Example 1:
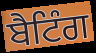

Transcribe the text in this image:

ਬੈਟਿੰਗ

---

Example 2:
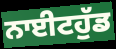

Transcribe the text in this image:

ਨਾਈਟਹੁੱਡ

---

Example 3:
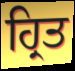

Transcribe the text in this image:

ਹ੍ਰਿਤ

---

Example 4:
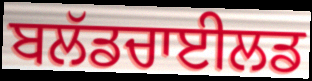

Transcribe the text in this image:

ਬਲੱਡਚਾਈਲਡ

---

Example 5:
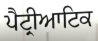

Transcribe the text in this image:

ਪੈਟ੍ਰੀਆਟਿਕ